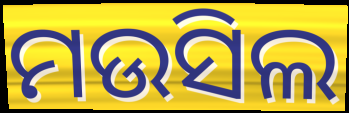
ମଉସିଲ